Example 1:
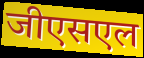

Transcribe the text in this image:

जीएसएल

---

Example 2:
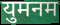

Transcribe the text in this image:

युमनम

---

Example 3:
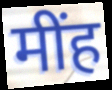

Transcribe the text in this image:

मींह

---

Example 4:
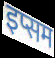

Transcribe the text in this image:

इप्सम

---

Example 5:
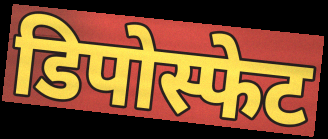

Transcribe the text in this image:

डिपोस्फेट